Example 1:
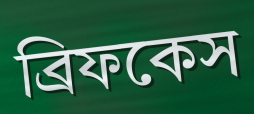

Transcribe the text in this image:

ব্রিফকেস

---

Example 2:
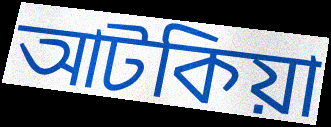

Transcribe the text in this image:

আটকিয়া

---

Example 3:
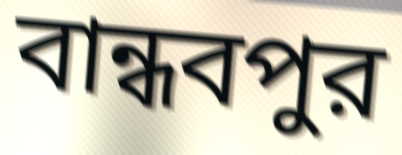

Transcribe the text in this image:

বান্ধবপুর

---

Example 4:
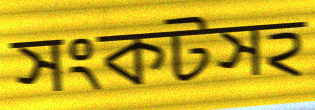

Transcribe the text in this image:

সংকটসহ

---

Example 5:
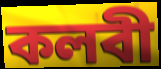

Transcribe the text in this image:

কলবী